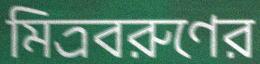
মিত্রবরুণের